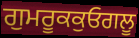
ਗੁਮਰੂਕਕੁਓਗਲੂ